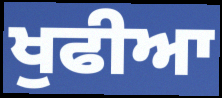
ਖੁਫੀਆ